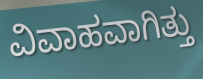
ವಿವಾಹವಾಗಿತ್ತು